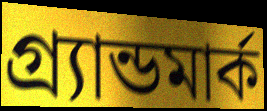
গ্র্যান্ডমার্ক